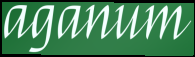
aganum